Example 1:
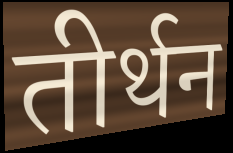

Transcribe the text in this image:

तीर्थन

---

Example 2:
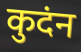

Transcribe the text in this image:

कुदंन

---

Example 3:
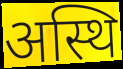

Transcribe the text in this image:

अस्थि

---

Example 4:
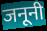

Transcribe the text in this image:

जनूनी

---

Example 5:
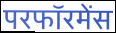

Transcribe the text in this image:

परफॉरमेंस